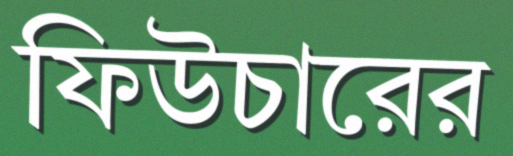
ফিউচারের